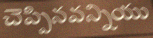
చెప్పినవన్నియు